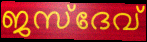
ജസ്ദേവ്